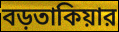
বড়তাকিয়ার